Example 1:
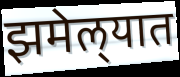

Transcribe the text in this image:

झमेल्यात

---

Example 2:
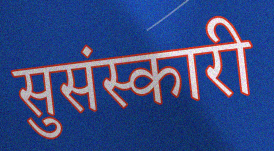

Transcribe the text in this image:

सुसंस्कारी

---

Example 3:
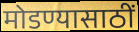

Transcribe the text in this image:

मोडण्यासाठीं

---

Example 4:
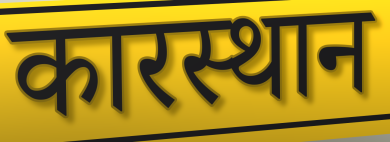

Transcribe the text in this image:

कारस्थान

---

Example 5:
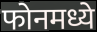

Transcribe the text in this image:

फोनमध्ये